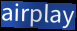
airplay